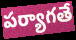
పర్యాగతే